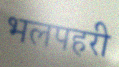
भलपहरी